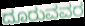
ದೂರುವವರ